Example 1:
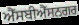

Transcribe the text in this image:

ਐੱਸਬੀਐੱਸਨਗਰ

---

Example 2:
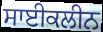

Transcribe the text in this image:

ਸਾਈਕਲੀਨ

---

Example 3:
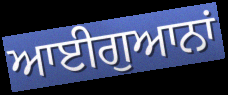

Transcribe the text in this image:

ਆਈਗੁਆਨਾਂ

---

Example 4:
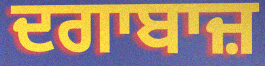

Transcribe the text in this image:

ਦਗਾਬਾਜ਼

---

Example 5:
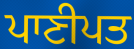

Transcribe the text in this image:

ਪਾਣੀਪਤ